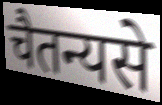
चैतन्यसे